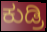
ಕುಡ್ರಿ